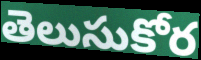
తెలుసుకోర